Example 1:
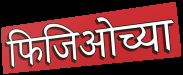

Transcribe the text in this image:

फिजिओच्या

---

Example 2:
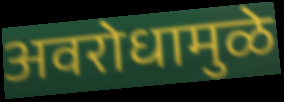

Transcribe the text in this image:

अवरोधामुळे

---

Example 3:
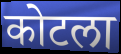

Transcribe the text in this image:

कोटला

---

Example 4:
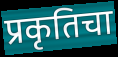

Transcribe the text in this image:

प्रकृतिचा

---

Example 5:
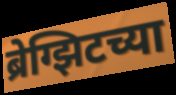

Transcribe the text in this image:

ब्रेग्झिटच्या